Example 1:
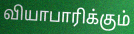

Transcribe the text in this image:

வியாபாரிக்கும்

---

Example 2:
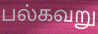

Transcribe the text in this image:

பல்கவறு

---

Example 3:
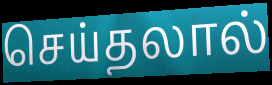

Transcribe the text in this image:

செய்தலால்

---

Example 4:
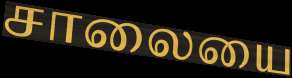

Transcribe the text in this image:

சாலையை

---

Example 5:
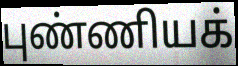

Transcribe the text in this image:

புண்ணியக்